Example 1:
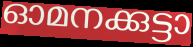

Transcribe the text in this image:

ഓമനക്കുട്ടാ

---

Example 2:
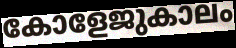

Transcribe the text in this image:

കോളേജുകാലം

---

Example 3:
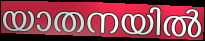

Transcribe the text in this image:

യാതനയിൽ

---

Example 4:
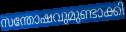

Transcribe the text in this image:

സന്തോഷവുമുണ്ടാക്കി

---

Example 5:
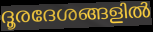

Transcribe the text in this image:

ദൂരദേശങ്ങളിൽ